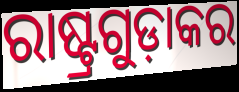
ରାଷ୍ଟ୍ରଗୁଡ଼ାକର